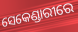
ସେକେଣ୍ଡାରୀରେ